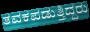
ತವಕಪಡುತ್ತಿದ್ದರು